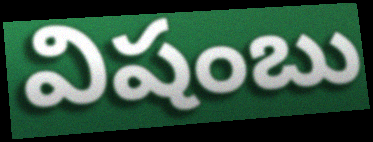
విషంబు